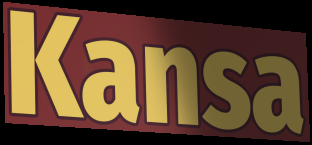
Kansa